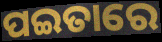
ପଇତାରେ